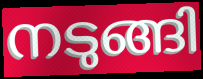
നടുങ്ങി